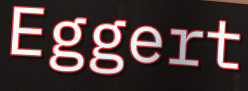
Eggert